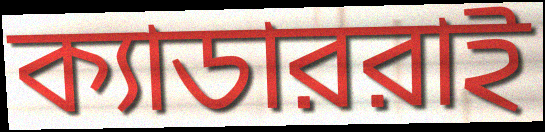
ক্যাডাররাই